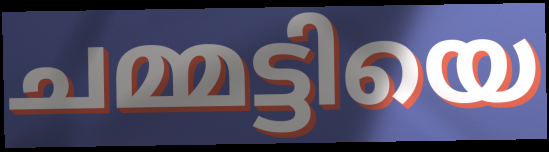
ചമ്മട്ടിയെ